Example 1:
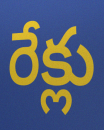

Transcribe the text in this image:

రేక్లు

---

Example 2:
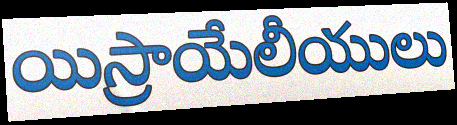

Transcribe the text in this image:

యిస్రాయేలీయులు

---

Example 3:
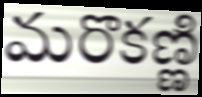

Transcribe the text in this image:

మరొకణ్ణి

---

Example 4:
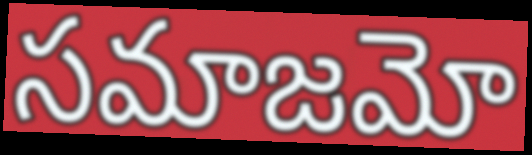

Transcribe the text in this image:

సమాజమో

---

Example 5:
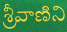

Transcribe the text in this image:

శ్రీవాణిని